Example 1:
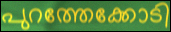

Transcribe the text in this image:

പുറത്തേക്കോടി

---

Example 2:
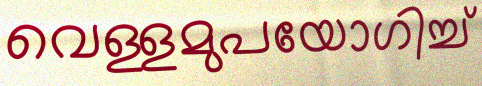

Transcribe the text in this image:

വെള്ളമുപയോഗിച്ച്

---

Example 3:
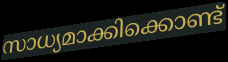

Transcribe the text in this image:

സാധ്യമാക്കിക്കൊണ്ട്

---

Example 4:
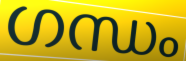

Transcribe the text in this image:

ഗന്ധം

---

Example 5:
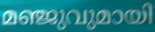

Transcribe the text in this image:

മഞ്ജുവുമായി